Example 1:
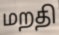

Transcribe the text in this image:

மறதி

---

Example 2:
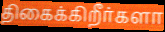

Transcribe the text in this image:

திகைக்கிறீர்களா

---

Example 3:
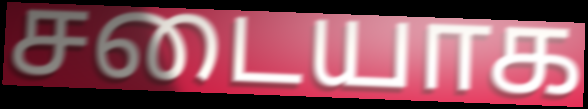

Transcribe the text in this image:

சடையாக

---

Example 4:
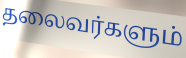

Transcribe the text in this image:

தலைவர்களும்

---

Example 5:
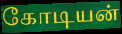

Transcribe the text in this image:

கோடியன்